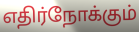
எதிர்நோக்கும்